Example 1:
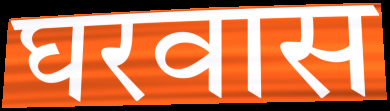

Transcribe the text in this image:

घरवास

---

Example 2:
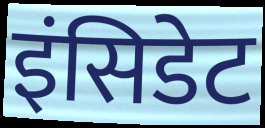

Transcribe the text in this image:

इंसिडेट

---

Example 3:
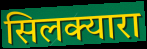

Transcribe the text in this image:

सिलक्यारा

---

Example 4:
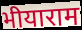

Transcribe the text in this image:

भीयाराम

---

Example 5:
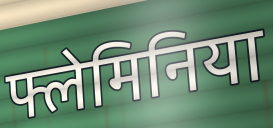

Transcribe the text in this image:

फ्लेमिनिया